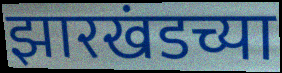
झारखंडच्या